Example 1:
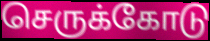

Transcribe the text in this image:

செருக்கோடு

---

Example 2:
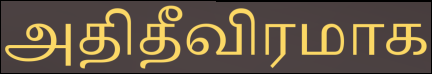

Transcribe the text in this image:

அதிதீவிரமாக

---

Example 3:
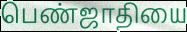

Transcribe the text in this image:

பெண்ஜாதியை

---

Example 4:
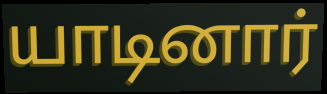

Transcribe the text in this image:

யாடினார்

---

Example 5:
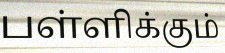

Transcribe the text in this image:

பள்ளிக்கும்